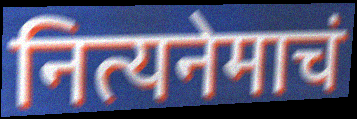
नित्यनेमाचं